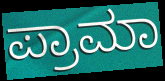
ಪ್ರಾಮಾ